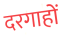
दरगाहों